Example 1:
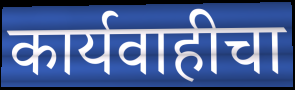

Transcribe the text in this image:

कार्यवाहीचा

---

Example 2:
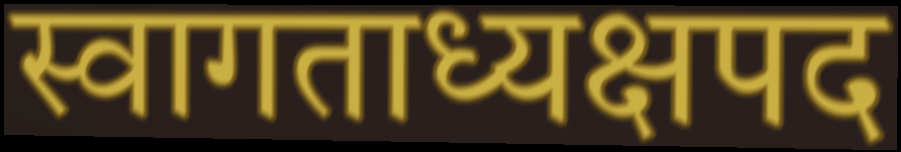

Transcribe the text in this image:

स्वागताध्यक्षपद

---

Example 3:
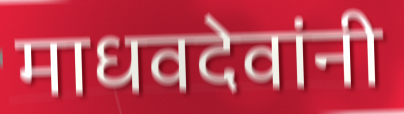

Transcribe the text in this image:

माधवदेवांनी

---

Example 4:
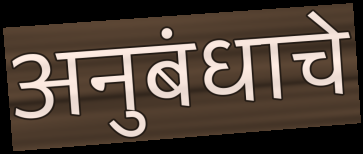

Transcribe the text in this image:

अनुबंधाचे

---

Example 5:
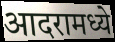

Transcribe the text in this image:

आदरामध्ये